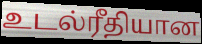
உடல்ரீதியான